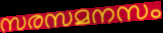
സരസമനസം